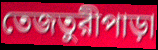
তেজতুরীপাড়া